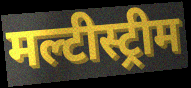
मल्टीस्ट्रीम